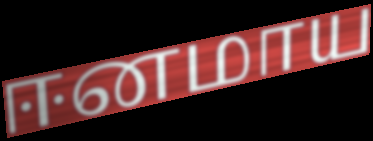
ஈனமாய